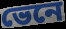
ভেনে